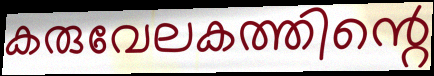
കരുവേലകത്തിന്റെ